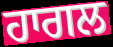
ਹਾਗਲ